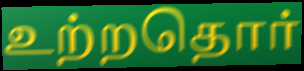
உற்றதொர்